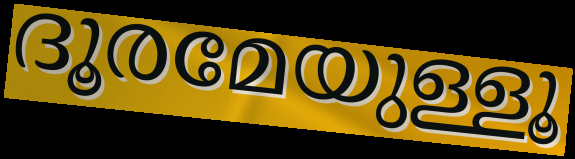
ദൂരമേയുള്ളൂ